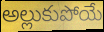
అల్లుకుపోయే